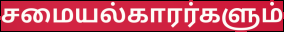
சமையல்காரர்களும்